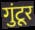
गुंटूर